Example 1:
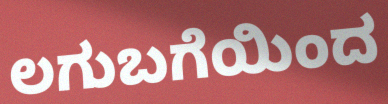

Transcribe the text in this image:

ಲಗುಬಗೆಯಿಂದ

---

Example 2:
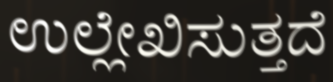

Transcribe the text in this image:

ಉಲ್ಲೇಖಿಸುತ್ತದೆ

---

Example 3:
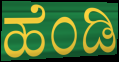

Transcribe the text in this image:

ಹೆಂಡಿ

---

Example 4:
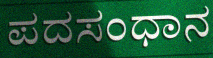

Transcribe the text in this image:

ಪದಸಂಧಾನ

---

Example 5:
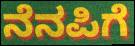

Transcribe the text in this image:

ನೆನಪಿಗೆ